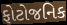
ફોટોજનિક